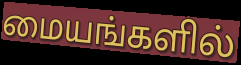
மையங்களில்